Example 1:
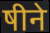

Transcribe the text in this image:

षीने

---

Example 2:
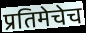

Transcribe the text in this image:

प्रतिमेचेच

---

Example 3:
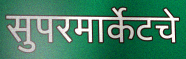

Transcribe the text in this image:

सुपरमार्केटचे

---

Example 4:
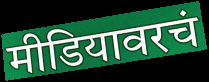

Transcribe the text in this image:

मीडियावरचं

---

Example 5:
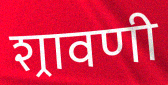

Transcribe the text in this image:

श्रावणी